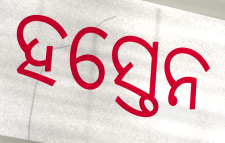
ହସ୍ତେନ